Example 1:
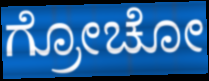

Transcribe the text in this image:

ಗ್ರೋಚೋ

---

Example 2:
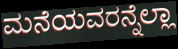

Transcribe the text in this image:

ಮನೆಯವರನ್ನೆಲ್ಲಾ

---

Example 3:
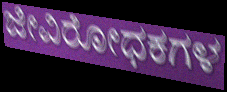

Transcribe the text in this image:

ಜೀವಿರೋಧಕಗಳ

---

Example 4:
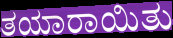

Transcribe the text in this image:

ತಯಾರಾಯಿತು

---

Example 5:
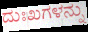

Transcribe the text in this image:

ದುಃಖಗಳನ್ನು